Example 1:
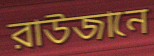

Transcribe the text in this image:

রাউজানে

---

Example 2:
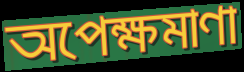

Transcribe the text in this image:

অপেক্ষমাণা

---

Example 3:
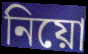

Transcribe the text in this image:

নিয়ো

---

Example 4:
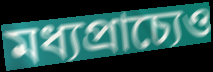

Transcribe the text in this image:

মধ্যপ্রাচ্যেও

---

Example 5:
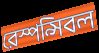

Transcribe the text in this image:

রেস্পন্সিবল